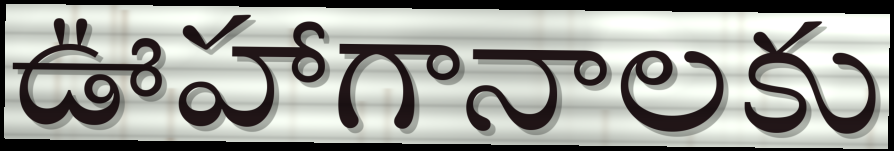
ఊహాగానాలకు